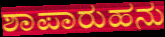
ಶಾಪಾರುಹನು